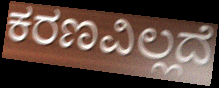
ಕರಣವಿಲ್ಲದೆ